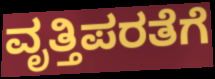
ವೃತ್ತಿಪರತೆಗೆ